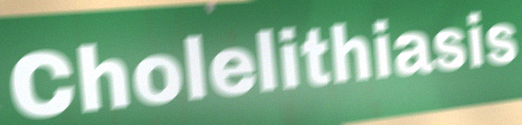
Cholelithiasis